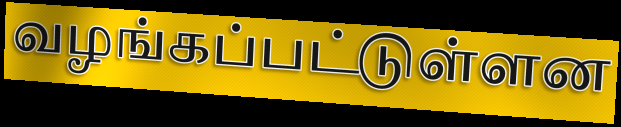
வழங்கப்பட்டுள்ளன